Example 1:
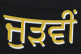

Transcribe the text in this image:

ਜੁੜਵੀਂ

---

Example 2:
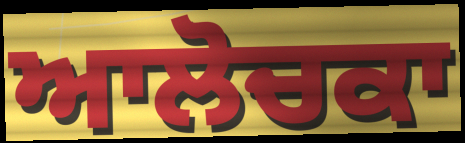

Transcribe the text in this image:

ਆਲੋਚਕਾ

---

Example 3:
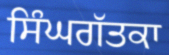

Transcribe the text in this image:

ਸਿੰਘਗੱਤਕਾ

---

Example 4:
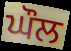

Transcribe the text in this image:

ਘੌਲ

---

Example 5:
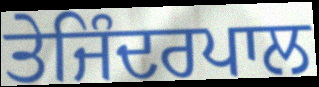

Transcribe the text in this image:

ਤੇਜਿੰਦਰਪਾਲ